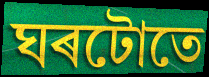
ঘৰটোতে